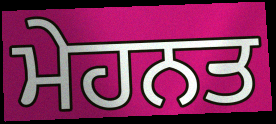
ਮੇਹਨਤ